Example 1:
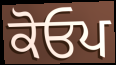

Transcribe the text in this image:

ਕੋਓਪ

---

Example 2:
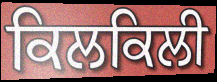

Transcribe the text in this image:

ਕਿਲਕਿਲੀ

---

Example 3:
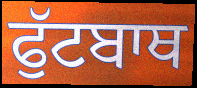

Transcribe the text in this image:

ਫੁੱਟਬਾਥ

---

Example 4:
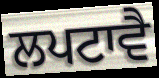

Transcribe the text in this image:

ਲਪਟਾਵੈ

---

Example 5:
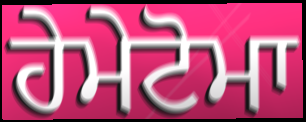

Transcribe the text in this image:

ਹੇਮੇਟੋਮਾ